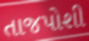
તાજપોશી